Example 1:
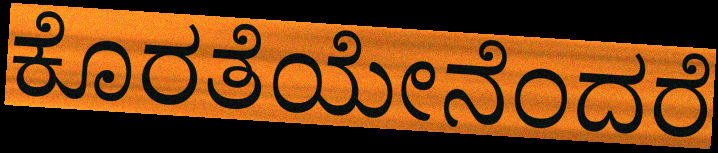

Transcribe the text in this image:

ಕೊರತೆಯೇನೆಂದರೆ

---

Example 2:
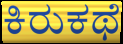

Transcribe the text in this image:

ಕಿರುಕಥೆ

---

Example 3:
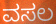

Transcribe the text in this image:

ವಸಲ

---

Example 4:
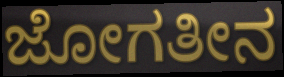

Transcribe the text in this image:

ಜೋಗತೀನ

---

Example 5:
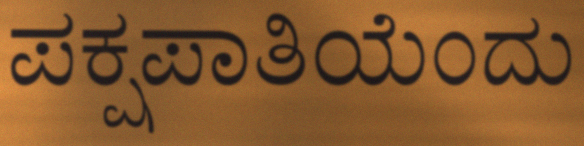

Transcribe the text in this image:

ಪಕ್ಷಪಾತಿಯೆಂದು